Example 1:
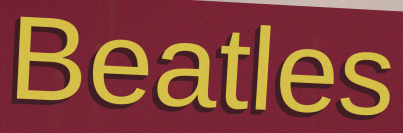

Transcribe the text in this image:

Beatles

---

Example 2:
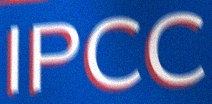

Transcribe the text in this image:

IPCC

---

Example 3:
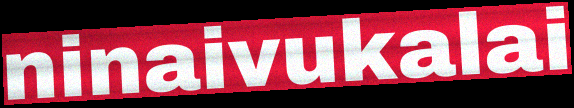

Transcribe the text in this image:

ninaivukalai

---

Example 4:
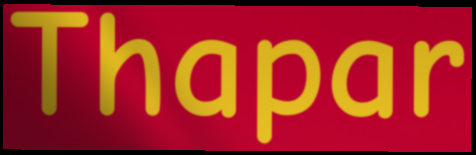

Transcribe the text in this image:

Thapar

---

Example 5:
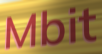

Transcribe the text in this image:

Mbit